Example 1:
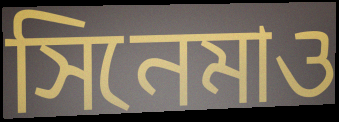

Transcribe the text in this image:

সিনেমাও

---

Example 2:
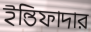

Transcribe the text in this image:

ইন্তিফাদার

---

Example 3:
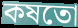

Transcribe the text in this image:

কষতো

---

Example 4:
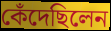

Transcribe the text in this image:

কেঁদেছিলেন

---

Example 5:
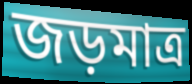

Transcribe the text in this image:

জড়মাত্র